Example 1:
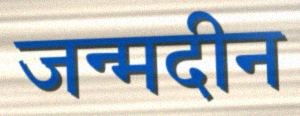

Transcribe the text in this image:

जन्मदीन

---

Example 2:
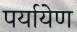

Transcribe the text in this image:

पर्यायेण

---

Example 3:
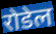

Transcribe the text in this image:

रोडेल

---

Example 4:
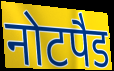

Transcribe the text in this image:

नोटपैड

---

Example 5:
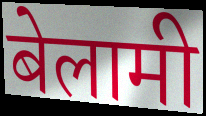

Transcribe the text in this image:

बेलामी